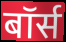
बॉर्स